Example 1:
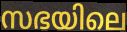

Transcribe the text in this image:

സഭയിലെ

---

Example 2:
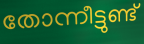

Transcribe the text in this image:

തോന്നീട്ടുണ്ട്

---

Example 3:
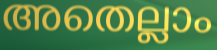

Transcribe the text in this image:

അതെല്ലാം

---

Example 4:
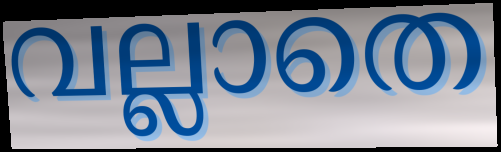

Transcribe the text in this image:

വല്ലാതെ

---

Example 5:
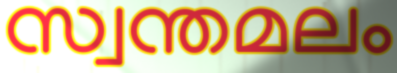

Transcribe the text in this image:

സ്വന്തമലം